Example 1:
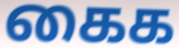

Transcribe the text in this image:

கைக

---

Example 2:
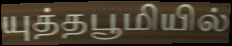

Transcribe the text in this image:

யுத்தபூமியில்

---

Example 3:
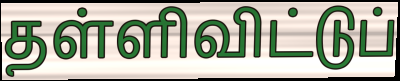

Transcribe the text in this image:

தள்ளிவிட்டுப்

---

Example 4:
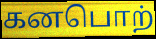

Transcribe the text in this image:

கனபொற்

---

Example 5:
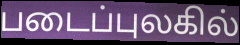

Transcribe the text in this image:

படைப்புலகில்